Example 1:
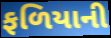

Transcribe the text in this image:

ફળિયાની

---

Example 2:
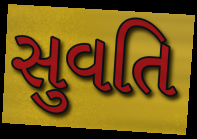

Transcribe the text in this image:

સુવતિ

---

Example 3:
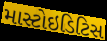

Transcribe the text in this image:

માસ્ટોઇડિટિસ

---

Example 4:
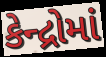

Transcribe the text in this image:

કેન્દ્રોમાં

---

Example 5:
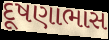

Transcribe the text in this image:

દૂષણાભાસ